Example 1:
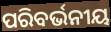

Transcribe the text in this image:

ପରିବର୍ଭନୀୟ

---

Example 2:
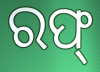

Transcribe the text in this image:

ରଫ୍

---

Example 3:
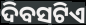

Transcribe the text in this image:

ଦିବସଟିଏ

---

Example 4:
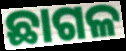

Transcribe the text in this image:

ଛାଗଳ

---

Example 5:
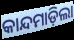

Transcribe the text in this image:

କାନ୍ଦମାଡ଼ିଲା